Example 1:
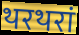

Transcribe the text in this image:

थरथरां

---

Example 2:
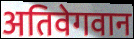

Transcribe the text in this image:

अतिवेगवान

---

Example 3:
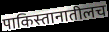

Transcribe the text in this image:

पाकिस्तानातीलच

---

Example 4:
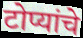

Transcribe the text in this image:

टोप्यांचे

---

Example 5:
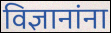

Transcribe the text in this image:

विज्ञानांना